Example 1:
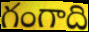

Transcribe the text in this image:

గంగాది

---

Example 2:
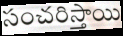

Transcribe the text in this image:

సంచరిస్తాయి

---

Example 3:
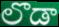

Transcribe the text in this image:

లొడా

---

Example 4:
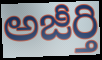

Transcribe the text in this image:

అజీర్తి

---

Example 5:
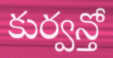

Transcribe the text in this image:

కుర్వన్తో